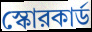
স্কোরকার্ড